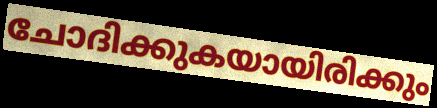
ചോദിക്കുകയായിരിക്കും